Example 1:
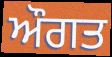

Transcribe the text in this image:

ਔਗਤ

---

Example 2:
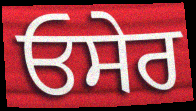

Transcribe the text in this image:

ਓਸੇਰ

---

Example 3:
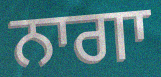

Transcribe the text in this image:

ਨਾਗਾ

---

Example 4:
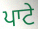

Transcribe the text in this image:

ਪਾਟੇ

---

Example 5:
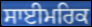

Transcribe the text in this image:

ਸਾਈਮਰਿਕ